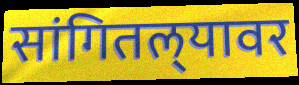
सांगितल्यावर